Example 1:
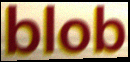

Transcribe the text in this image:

blob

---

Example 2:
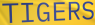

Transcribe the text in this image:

TIGERS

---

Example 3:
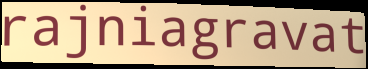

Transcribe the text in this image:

rajniagravat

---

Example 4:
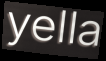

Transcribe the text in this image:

yella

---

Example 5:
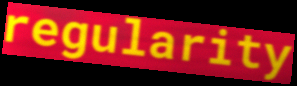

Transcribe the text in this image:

regularity